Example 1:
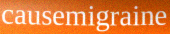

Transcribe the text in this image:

causemigraine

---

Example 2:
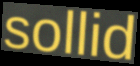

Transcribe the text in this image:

sollid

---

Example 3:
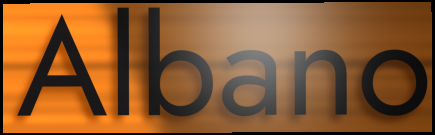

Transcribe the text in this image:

Albano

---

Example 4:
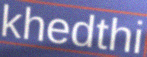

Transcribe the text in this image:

khedthi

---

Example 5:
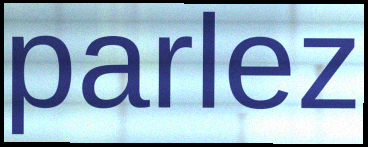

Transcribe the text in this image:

parlez